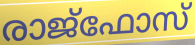
രാജ്ഫോസ്